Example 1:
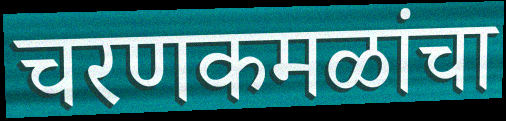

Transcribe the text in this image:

चरणकमळांचा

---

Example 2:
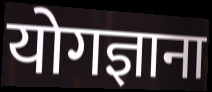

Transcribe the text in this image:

योगज्ञाना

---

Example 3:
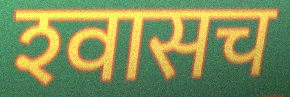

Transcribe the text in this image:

श्‍वासच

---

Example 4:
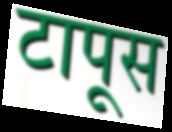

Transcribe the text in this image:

टापूस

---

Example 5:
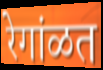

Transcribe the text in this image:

रेगांळत